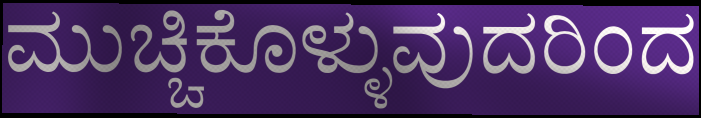
ಮುಚ್ಚಿಕೊಳ್ಳುವುದರಿಂದ